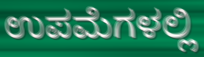
ಉಪಮೆಗಳಲ್ಲಿ